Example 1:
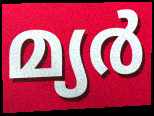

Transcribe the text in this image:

മ്യർ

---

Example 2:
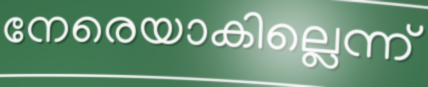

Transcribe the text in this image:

നേരെയാകില്ലെന്ന്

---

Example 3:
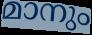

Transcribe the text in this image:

മാനും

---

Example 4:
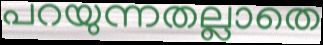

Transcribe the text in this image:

പറയുന്നതല്ലാതെ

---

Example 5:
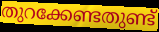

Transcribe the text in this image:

തുറക്കേണ്ടതുണ്ട്